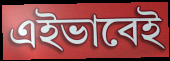
এইভাবেই